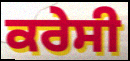
ਕਰੇਸੀ